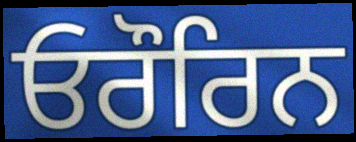
ਓਰੌਰਿਨ